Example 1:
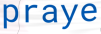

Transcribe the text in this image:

praye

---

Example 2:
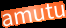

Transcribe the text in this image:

amutu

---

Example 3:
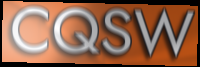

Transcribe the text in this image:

CQSW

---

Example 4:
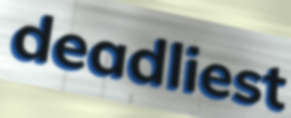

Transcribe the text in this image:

deadliest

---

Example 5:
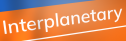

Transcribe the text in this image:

Interplanetary